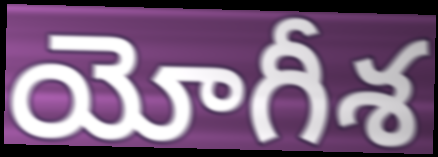
యోగీశ